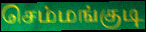
செம்மங்குடி